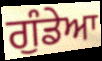
ਗੁੰਡੇਆ